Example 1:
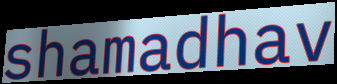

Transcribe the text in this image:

shamadhav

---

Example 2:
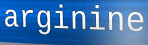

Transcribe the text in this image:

arginine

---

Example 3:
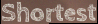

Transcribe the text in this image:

Shortest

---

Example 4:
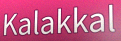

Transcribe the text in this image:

Kalakkal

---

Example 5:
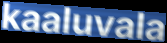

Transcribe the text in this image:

kaaluvala